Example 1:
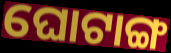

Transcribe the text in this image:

ଘୋଟାଙ୍ଗ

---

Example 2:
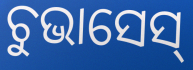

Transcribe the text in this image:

ଚୁଭାସେସ୍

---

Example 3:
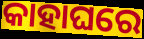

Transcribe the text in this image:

କାହାଘରେ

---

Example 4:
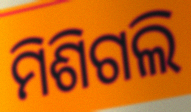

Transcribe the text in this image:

ମିଶିଗଲି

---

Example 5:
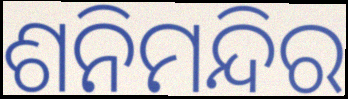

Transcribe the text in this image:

ଶନିମନ୍ଦିର